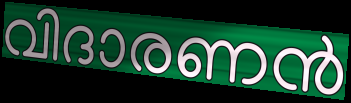
വിദാരണൻ